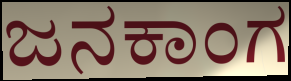
ಜನಕಾಂಗ